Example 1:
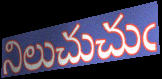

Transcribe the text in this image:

నిలుచుచుఁ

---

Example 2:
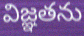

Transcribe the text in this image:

విజ్ఞతను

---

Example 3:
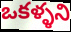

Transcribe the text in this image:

ఒకళ్ళని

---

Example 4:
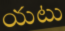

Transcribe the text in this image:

యటు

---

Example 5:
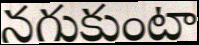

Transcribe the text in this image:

నగుకుంటా